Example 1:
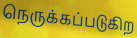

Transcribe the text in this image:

நெருக்கப்படுகிற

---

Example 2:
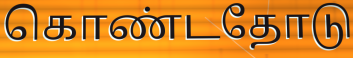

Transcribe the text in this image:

கொண்டதோடு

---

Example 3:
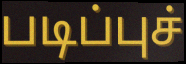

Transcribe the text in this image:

படிப்புச்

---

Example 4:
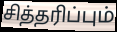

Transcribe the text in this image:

சித்தரிப்பும்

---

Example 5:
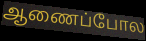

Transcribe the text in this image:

ஆணைப்போல